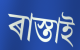
ৰাস্তাই